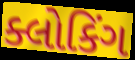
ક્લોકિંગ